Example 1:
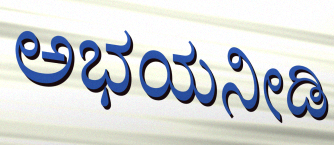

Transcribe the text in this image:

ಅಭಯನೀಡಿ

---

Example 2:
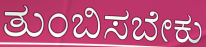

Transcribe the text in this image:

ತುಂಬಿಸಬೇಕು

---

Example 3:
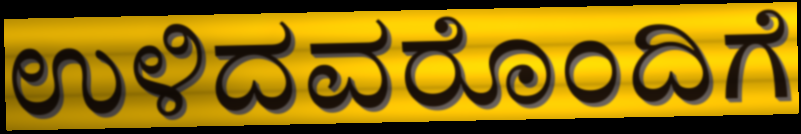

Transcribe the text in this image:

ಉಳಿದವರೊಂದಿಗೆ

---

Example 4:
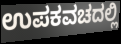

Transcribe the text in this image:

ಉಪಕವಚದಲ್ಲಿ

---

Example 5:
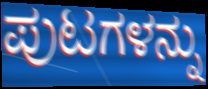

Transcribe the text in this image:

ಪುಟಗಳನ್ನು